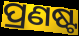
ପ୍ରଣଷ୍ଟ